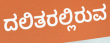
ದಲಿತರಲ್ಲಿರುವ